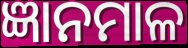
ଜ୍ଞାନମାଳ